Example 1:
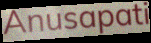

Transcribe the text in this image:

Anusapati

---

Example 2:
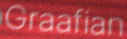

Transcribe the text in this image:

Graafian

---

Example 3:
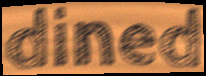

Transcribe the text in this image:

dined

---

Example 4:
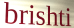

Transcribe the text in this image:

brishti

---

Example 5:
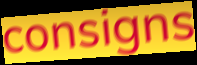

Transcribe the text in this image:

consigns